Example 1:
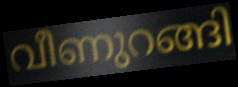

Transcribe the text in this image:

വീണുറങ്ങി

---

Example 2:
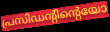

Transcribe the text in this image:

പ്രസിഡന്റിന്റെയോ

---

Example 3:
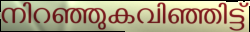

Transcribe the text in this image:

നിറഞ്ഞുകവിഞ്ഞിട്ട്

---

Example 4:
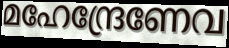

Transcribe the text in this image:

മഹേന്ദ്രേണേവ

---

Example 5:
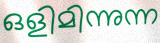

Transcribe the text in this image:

ഒളിമിന്നുന്ന